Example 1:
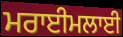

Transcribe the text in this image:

ਮਰਾਈਮਲਾਈ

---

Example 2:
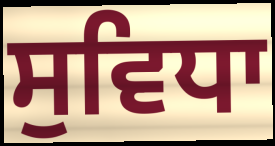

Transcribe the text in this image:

ਸੁਵਿਧਾ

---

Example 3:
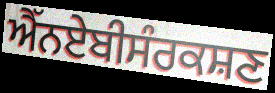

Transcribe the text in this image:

ਐੱਨਏਬੀਸੰਰਕਸ਼ਣ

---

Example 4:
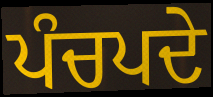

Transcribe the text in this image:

ਪੰਚਪਦੇ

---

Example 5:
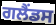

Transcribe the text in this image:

ਗਲੈਂਡਸ